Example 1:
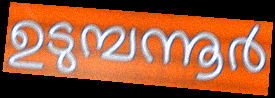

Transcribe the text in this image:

ഉടുമ്പന്നൂർ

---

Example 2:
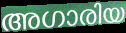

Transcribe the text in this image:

അഗാരിയ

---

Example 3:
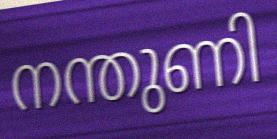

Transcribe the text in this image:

നന്തുണി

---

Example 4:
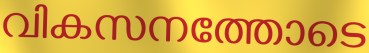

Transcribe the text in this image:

വികസനത്തോടെ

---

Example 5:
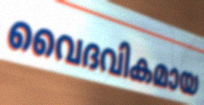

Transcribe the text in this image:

വൈദവികമായ